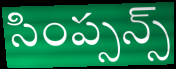
సింప్సన్స్